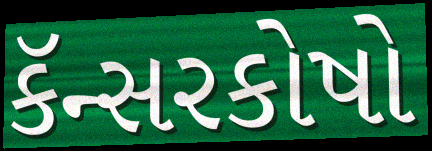
કૅન્સરકોષો